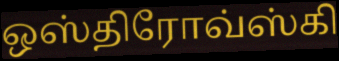
ஒஸ்திரோவ்ஸ்கி